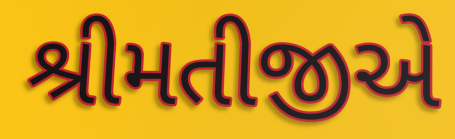
શ્રીમતીજીએ